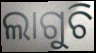
ଲାଗୁଚି